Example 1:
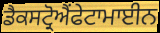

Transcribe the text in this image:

ਡੈਕਸਟ੍ਰੋਐਂਫੇਟਾਮਾਈਨ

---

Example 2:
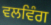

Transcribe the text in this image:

ਵਲਵਿੰਗ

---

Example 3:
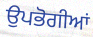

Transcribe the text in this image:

ਉਪਭੋਗੀਆਂ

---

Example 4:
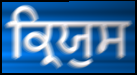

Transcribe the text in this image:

ਕ੍ਰਿਯੁਸ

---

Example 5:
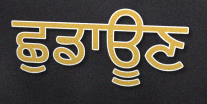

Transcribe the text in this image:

ਛੁਡਾਊਣ